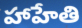
హాహేతి